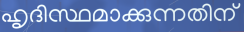
ഹൃദിസ്ഥമാക്കുന്നതിന്